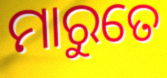
ମାରୁତେ